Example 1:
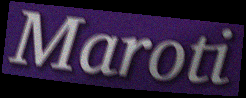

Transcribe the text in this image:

Maroti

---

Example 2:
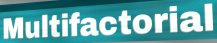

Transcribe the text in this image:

Multifactorial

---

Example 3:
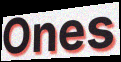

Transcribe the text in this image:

Ones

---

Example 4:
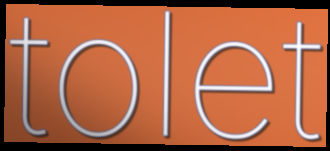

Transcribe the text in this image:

tolet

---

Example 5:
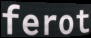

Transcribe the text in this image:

ferot